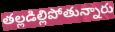
తల్లడిల్లిపోతున్నారు